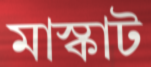
মাস্কাট